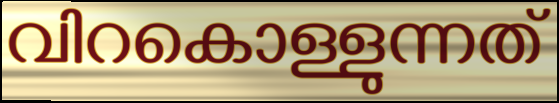
വിറകൊള്ളുന്നത്